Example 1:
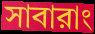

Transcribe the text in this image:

সাবারাং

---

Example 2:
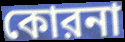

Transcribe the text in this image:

কোরনা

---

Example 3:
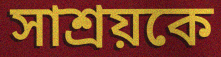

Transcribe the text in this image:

সাশ্রয়কে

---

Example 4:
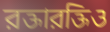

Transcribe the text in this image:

রক্তারক্তিও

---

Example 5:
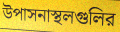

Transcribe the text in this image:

উপাসনাস্থলগুলির